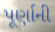
પૂર્ણાની